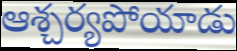
ఆశ్చర్యపోయాడు